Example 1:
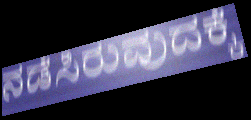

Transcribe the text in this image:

ನಡೆಸಿರುವುದಕ್ಕೆ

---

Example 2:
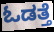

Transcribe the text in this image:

ಓಡತ್ತೆ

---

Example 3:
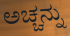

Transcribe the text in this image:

ಅಚ್ಚನ್ನು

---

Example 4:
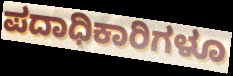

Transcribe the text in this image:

ಪದಾಧಿಕಾರಿಗಳೂ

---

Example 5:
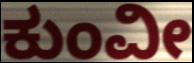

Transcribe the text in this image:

ಕುಂವೀ